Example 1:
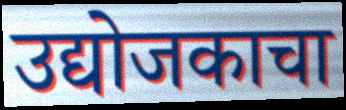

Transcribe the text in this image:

उद्योजकाचा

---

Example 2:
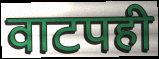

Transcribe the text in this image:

वाटपही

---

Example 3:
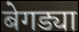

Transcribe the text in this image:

बेगड्या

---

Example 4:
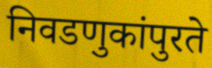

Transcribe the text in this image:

निवडणुकांपुरते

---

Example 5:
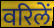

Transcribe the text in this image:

वरिलें